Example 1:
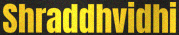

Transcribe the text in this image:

Shraddhvidhi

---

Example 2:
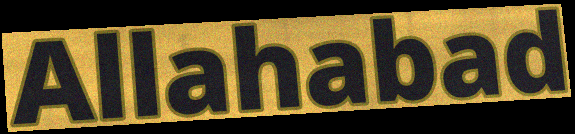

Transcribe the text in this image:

Allahabad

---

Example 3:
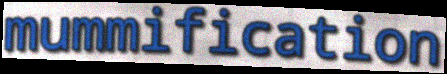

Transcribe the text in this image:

mummification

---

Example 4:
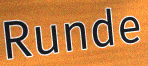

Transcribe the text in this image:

Runde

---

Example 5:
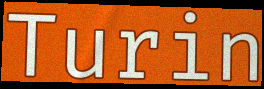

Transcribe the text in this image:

Turin